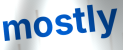
mostly